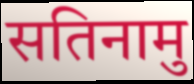
सतिनामु